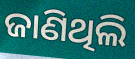
ଜାଣିଥିଲି